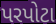
પરપોટા